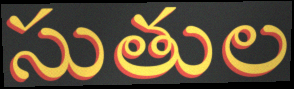
సుతుల